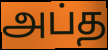
அப்த